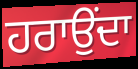
ਹਰਾਉਂਦਾ